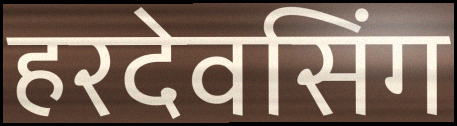
हरदेवसिंग